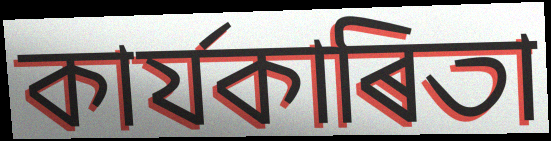
কাৰ্যকাৰিতা